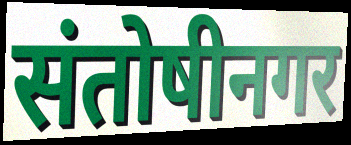
संतोषीनगर